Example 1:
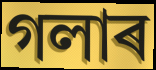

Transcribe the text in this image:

গলাৰ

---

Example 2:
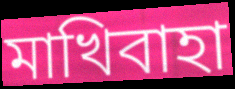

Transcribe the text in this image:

মাখিবাহা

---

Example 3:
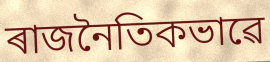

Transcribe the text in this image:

ৰাজনৈতিকভাৱে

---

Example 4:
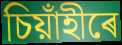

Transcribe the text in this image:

চিয়াঁহীৰে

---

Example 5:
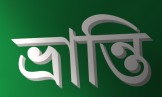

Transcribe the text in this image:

ভ্ৰান্তি